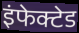
इंफेक्टेड